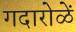
गदारोळें